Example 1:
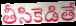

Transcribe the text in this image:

తీసికెడితే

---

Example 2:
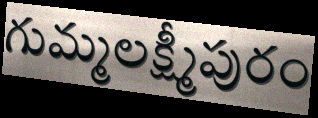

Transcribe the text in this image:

గుమ్మలక్ష్మీపురం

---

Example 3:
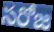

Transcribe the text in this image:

సరోజ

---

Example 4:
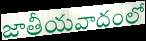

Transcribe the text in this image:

జాతీయవాదంలో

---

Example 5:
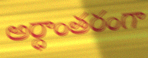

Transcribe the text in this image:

అర్ధాంతరంగా